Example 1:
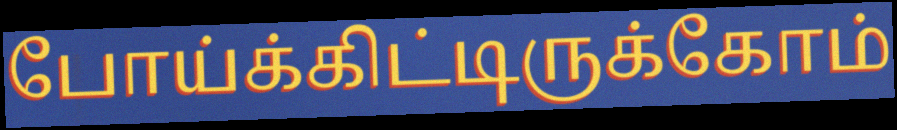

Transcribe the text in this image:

போய்க்கிட்டிருக்கோம்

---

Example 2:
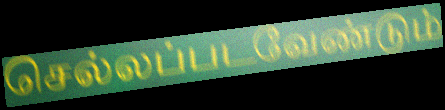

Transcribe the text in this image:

செல்லப்படவேண்டும்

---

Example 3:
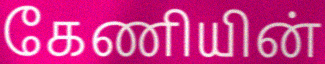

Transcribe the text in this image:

கேணியின்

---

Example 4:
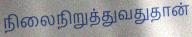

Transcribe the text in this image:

நிலைநிறுத்துவதுதான்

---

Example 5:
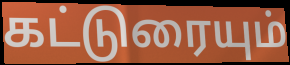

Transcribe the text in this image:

கட்டுரையும்